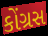
કોંગ્રસ